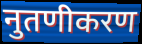
नुतणीकरण